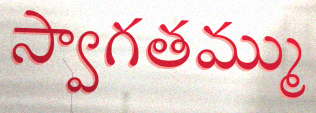
స్వాగతమ్ము